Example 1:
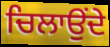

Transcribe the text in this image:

ਚਿਲਾਉਂਦੇ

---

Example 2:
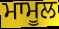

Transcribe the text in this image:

ਮਾਮੂਲ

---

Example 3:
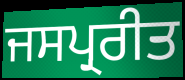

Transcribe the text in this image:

ਜਸਪ੍ਰਰੀਤ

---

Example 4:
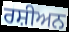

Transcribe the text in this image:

ਰਸ਼ੀਅਨ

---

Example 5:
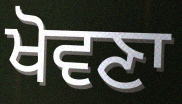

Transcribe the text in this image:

ਖੋਵਣਾ